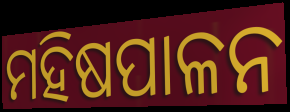
ମହିଷପାଳନ